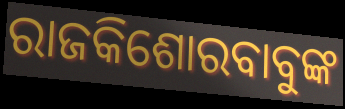
ରାଜକିଶୋରବାବୁଙ୍କ